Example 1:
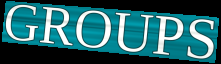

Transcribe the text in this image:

GROUPS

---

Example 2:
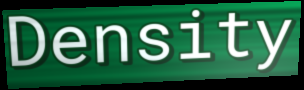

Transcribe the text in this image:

Density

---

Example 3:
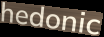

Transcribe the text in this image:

hedonic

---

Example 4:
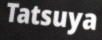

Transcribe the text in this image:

Tatsuya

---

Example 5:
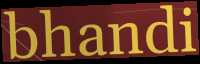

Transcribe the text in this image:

bhandi